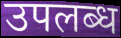
उपलब्ध